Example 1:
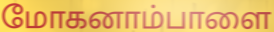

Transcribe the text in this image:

மோகனாம்பாளை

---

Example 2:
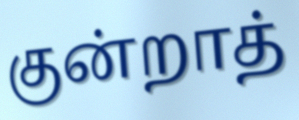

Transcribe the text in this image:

குன்றாத்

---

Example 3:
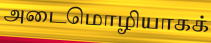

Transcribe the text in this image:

அடைமொழியாகக்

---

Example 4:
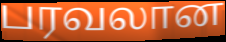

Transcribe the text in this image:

பரவலான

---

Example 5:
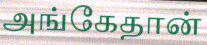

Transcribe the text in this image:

அங்கேதான்